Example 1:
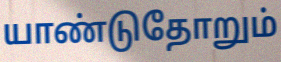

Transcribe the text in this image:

யாண்டுதோறும்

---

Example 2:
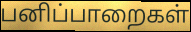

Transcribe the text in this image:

பனிப்பாறைகள்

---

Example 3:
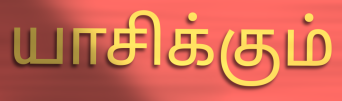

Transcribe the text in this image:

யாசிக்கும்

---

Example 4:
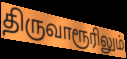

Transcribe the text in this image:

திருவாரூரிலும்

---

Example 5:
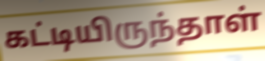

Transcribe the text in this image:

கட்டியிருந்தாள்